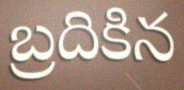
బ్రదికిన